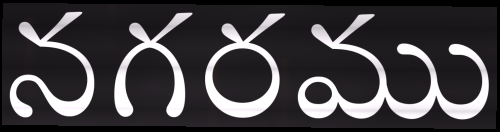
నగరము